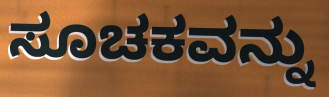
ಸೂಚಕವನ್ನು